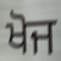
ਖੋਜ